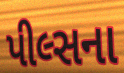
પીલ્સના